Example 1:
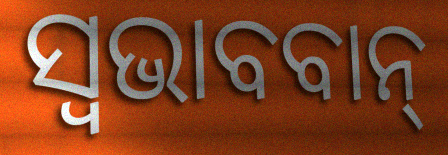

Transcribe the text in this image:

ସ୍ଵଭାବବାନ୍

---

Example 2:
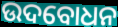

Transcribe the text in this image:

ଉଦବୋଧନ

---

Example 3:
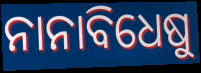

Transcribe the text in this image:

ନାନାବିଧେଷୁ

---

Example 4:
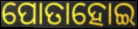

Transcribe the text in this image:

ପୋତାହୋଇ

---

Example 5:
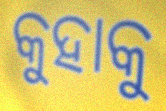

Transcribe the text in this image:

କୁହାକୁ